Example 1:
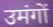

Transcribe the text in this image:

उमंगों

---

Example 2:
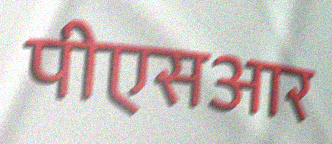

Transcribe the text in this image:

पीएसआर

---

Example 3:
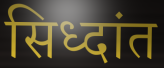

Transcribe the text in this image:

सिध्दांत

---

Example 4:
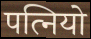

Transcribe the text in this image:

पत्नियो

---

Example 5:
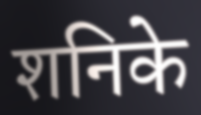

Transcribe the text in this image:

शनिके